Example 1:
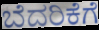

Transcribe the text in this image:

ಬೆದರಿಕೆಗೆ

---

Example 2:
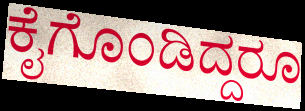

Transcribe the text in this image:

ಕೈಗೊಂಡಿದ್ದರೂ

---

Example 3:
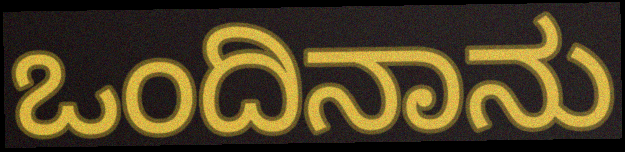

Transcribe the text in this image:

ಒಂದಿನಾನು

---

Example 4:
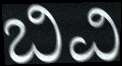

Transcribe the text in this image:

ಬಿವಿ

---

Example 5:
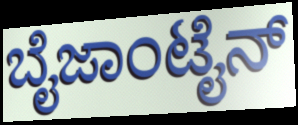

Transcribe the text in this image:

ಬೈಜಾಂಟೈನ್